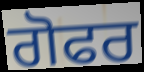
ਗੋਫਰ